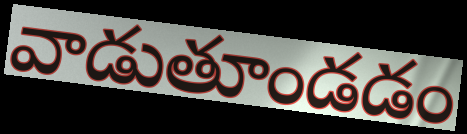
వాడుతూండడం